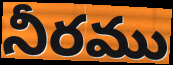
నీరము